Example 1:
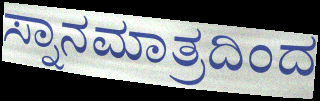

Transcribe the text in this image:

ಸ್ನಾನಮಾತ್ರದಿಂದ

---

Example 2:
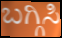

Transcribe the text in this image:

ಬಗ್ಗಿಸಿ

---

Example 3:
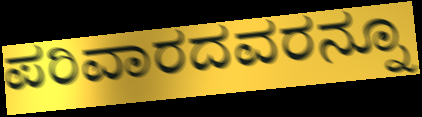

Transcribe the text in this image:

ಪರಿವಾರದವರನ್ನೂ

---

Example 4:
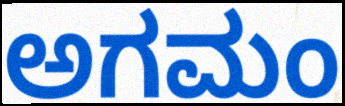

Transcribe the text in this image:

ಅಗಮಂ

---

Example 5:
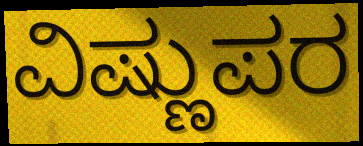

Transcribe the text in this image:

ವಿಷ್ಣುಪರ